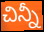
చిన్నీ